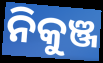
ନିକୁଞ୍ଜ